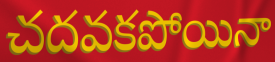
చదవకపోయినా